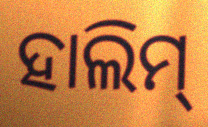
ହାଲିମ୍